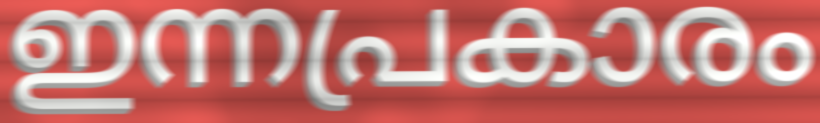
ഇന്നപ്രകാരം